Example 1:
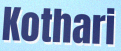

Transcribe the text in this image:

Kothari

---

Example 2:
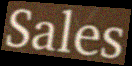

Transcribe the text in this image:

Sales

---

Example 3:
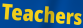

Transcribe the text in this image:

Teachers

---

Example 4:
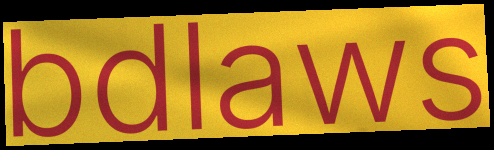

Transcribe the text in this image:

bdlaws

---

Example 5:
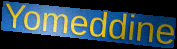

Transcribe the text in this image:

Yomeddine